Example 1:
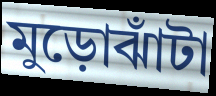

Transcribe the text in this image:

মুড়োঝাঁটা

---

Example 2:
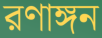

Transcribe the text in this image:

রণাঙ্গন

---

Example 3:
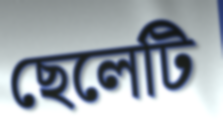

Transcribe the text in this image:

ছেলেটি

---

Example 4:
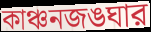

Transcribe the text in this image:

কাঞ্চনজঙঘার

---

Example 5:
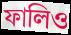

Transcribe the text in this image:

ফালিও